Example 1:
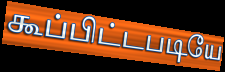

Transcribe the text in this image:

கூப்பிட்டபடியே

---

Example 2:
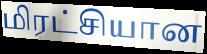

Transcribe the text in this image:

மிரட்சியான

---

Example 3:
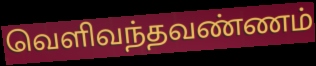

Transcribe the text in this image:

வெளிவந்தவண்ணம்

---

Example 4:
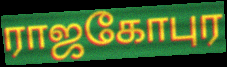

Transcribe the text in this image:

ராஜகோபுர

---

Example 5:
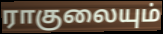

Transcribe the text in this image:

ராகுலையும்